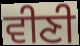
ਵੀਣੀ